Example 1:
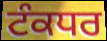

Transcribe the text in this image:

ਟੰਕਧਰ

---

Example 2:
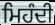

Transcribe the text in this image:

ਮਿਹੰਦੀ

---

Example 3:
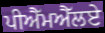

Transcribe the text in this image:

ਪੀਐੱਮਐੱਲਏ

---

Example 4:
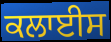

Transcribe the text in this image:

ਕਲਾਈਸ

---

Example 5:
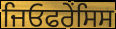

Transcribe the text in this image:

ਜਿਓਫਰੇਂਸਿਸ